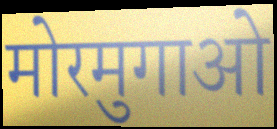
मोरमुगाओ